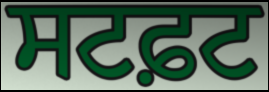
ਸਟਫ਼ਟ